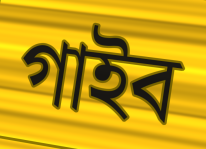
গাইব